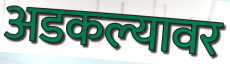
अडकल्यावर